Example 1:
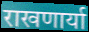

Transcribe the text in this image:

राखणार्या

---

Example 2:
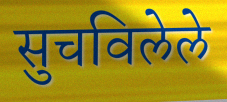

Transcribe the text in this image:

सुचविलेले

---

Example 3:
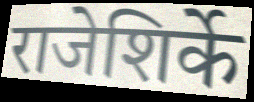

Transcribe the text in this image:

राजेशिर्के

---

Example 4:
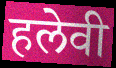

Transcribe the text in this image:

हलेवी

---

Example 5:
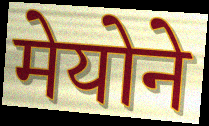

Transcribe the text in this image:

मेयोने